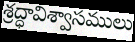
శ్రద్ధావిశ్వాసములు